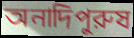
অনাদিপুরুষ